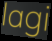
lagi